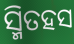
ସ୍ମିତହସ